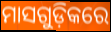
ମାସଗୁଡ଼ିକରେ